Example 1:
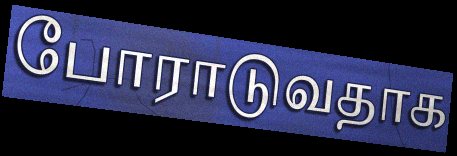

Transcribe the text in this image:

போராடுவதாக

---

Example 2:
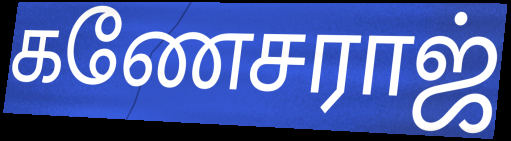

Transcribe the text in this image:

கணேசராஜ்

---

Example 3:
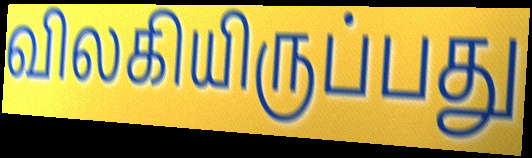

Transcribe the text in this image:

விலகியிருப்பது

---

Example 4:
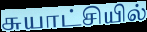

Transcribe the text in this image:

சுயாட்சியில்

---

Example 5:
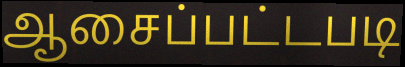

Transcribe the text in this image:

ஆசைப்பட்டபடி